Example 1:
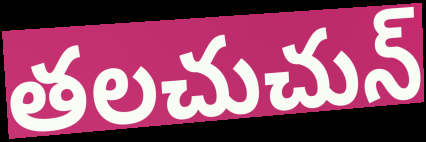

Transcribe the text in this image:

తలచుచున్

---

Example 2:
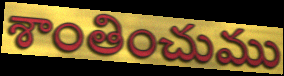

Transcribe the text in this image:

శాంతించుము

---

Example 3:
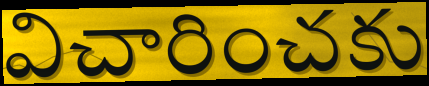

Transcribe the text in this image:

విచారించకు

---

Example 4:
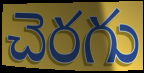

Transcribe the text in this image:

చెరగు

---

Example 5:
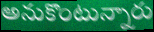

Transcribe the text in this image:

అనుకొంటున్నారు